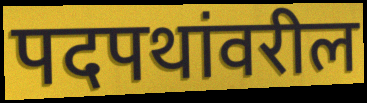
पदपथांवरील